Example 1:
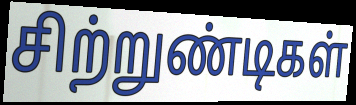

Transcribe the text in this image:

சிற்றுண்டிகள்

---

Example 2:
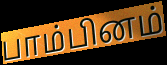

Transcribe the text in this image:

பாம்பினம்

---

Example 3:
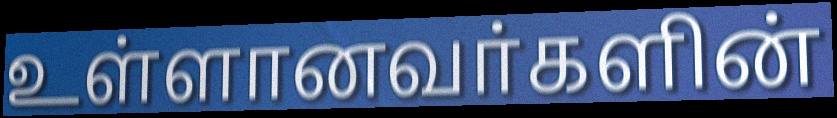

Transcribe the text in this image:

உள்ளானவர்களின்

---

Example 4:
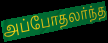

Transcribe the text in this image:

அப்போதலர்ந்த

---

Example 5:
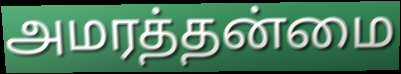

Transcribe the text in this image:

அமரத்தன்மை